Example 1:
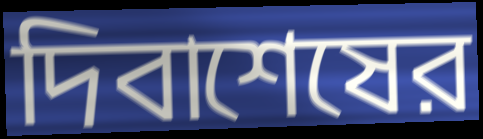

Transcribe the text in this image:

দিবাশেষের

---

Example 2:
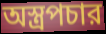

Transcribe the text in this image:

অস্ত্রপচার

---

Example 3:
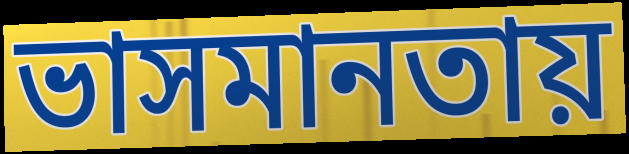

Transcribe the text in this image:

ভাসমানতায়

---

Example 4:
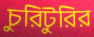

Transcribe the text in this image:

চুরিটুরির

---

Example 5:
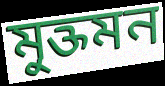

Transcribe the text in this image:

মুক্তমন